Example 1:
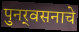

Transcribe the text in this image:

पुनर्वसनाचे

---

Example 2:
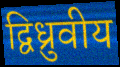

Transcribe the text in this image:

द्विध्रुवीय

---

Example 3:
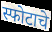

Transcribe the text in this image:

स्फोटाचे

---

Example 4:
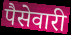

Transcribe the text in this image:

पैसेवारी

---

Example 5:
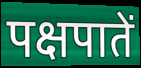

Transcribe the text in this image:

पक्षपातें